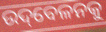
ଉଦ୍‌ବେଳନକୁ